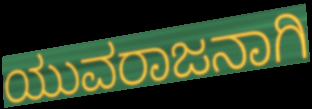
ಯುವರಾಜನಾಗಿ